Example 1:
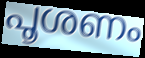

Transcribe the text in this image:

പൂശണം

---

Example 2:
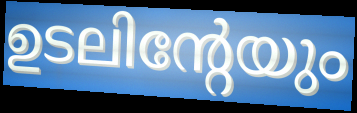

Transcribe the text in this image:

ഉടലിന്റേയും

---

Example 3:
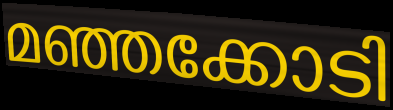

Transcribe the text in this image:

മഞ്ഞക്കോടി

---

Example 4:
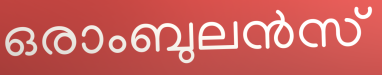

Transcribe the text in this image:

ഒരാംബുലൻസ്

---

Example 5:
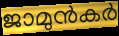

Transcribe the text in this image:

ജാമുൻകർ